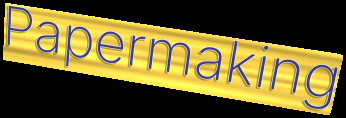
Papermaking